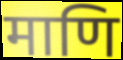
माणि